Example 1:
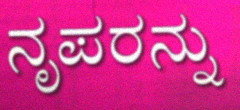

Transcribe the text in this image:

ನೃಪರನ್ನು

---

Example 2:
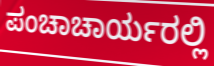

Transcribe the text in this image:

ಪಂಚಾಚಾರ್ಯರಲ್ಲಿ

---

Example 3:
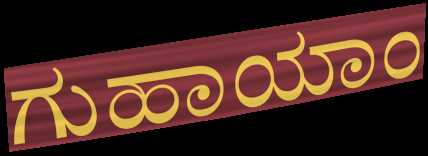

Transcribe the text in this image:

ಗುಹಾಯಾಂ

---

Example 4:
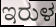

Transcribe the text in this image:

ಇರುಳ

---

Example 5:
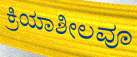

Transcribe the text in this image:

ಕ್ರಿಯಾಶೀಲವೂ